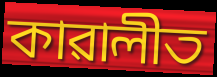
কাৱালীত